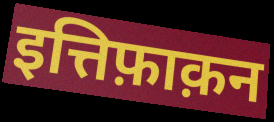
इत्तिफ़ाक़न